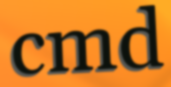
cmd